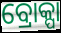
ବ୍ରୋକ୍ପା